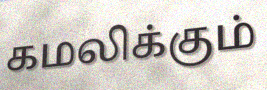
கமலிக்கும்